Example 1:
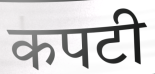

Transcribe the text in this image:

कपटी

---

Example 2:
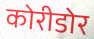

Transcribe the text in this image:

कोरीडोर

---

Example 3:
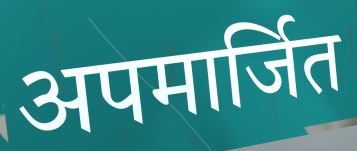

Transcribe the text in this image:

अपमार्जित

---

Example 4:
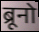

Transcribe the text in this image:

ब्रूनो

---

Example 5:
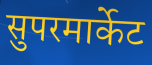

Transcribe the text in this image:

सुपरमार्केट